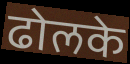
ढोलके